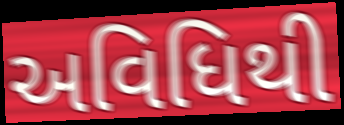
અવિધિથી